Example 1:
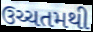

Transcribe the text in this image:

ઉચ્ચતમથી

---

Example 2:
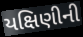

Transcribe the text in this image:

યક્ષિણીની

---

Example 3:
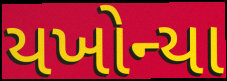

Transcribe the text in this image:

યખોન્યા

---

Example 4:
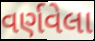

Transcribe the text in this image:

વર્ણવેલા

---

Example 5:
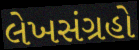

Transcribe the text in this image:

લેખસંગ્રહો